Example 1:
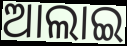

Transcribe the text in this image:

ଆଲାଇ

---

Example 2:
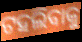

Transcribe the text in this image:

ଟହଲିବାକୁ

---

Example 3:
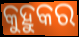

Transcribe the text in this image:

କୁହୁକର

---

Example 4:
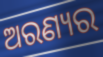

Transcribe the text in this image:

ଅରଣ୍ୟର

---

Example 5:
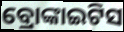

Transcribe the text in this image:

ବ୍ରୋଙ୍କାଇଟିସ